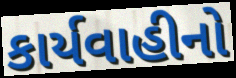
કાર્યવાહીનો